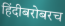
हिंदीबरोबरच